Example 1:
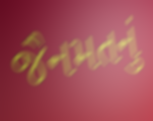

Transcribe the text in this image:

જૈનમતનું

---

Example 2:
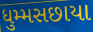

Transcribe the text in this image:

ધુમ્મસછાયા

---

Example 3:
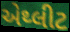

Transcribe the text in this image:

એથ્લીટ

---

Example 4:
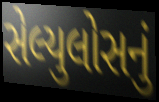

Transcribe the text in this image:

સેલ્યુલોસનું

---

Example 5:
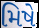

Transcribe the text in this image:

મિષે